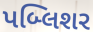
પબ્લિશર